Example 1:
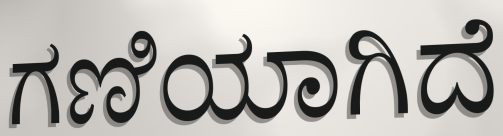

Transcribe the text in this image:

ಗಣಿಯಾಗಿದೆ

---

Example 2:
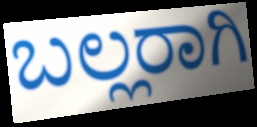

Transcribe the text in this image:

ಬಲ್ಲರಾಗಿ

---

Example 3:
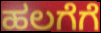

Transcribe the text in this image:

ಹಲಗೆಗೆ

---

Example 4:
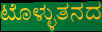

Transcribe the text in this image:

ಟೊಳ್ಳುತನದ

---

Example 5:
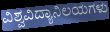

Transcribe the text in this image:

ವಿಶ್ವವಿದ್ಯಾನಿಲಯಗಳು